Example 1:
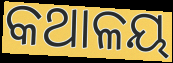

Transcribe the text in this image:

କଥାଳୟ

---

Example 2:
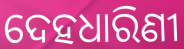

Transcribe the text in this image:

ଦେହଧାରିଣୀ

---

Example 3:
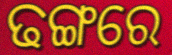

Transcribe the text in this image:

ଢଙ୍ଗରେ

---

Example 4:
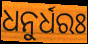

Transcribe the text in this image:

ଧନୁର୍ଧରଃ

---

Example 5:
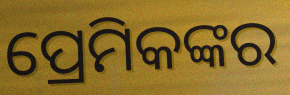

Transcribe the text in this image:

ପ୍ରେମିକଙ୍କର